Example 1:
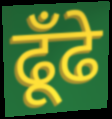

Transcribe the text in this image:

ढूँढे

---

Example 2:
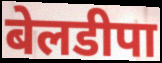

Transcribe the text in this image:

बेलडीपा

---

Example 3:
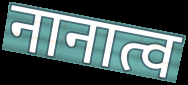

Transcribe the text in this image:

नानात्व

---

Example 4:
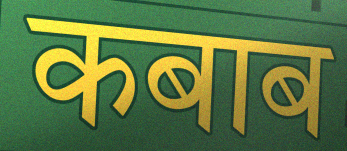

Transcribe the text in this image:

कबाब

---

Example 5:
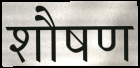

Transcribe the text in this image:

शौषण